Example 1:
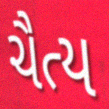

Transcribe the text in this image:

ચૈત્ય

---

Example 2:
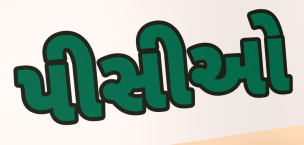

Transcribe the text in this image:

પીસીઓ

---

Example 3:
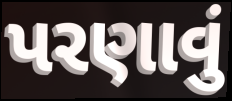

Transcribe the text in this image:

પરણાવું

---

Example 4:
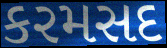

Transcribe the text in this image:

કરમસદ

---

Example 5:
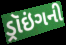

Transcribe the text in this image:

ડ્રૉઇંગની